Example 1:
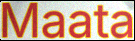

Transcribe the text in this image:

Maata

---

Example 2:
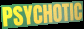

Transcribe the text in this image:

PSYCHOTIC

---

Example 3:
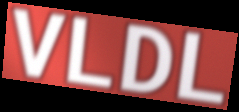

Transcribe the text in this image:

VLDL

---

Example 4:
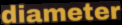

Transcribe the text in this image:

diameter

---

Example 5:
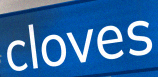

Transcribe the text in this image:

cloves